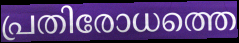
പ്രതിരോധത്തെ